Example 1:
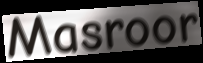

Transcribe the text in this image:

Masroor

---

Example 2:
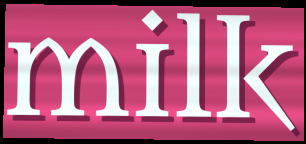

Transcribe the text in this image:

milk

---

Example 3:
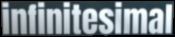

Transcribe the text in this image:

infinitesimal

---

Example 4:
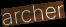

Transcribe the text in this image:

archer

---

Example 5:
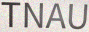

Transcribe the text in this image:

TNAU